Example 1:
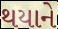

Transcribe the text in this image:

થયાને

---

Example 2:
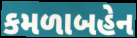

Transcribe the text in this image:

કમળાબહેન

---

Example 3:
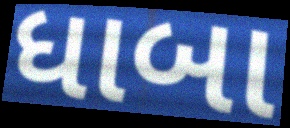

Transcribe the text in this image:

ધાબા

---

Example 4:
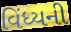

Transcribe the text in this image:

વિંધ્યની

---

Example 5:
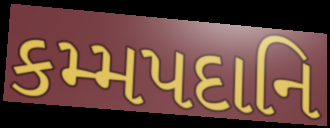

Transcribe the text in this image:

કમ્મપદાનિ